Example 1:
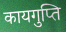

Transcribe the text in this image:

कायगुप्ति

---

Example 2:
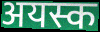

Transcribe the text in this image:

अयस्क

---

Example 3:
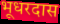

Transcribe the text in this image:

भूधरदास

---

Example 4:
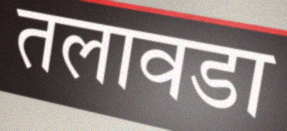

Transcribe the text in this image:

तलावडा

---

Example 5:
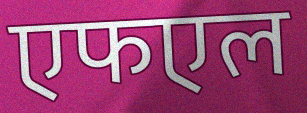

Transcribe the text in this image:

एफएल